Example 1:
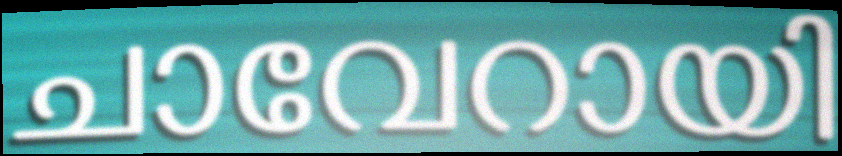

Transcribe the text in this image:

ചാവേറായി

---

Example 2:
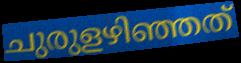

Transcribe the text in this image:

ചുരുളഴിഞ്ഞത്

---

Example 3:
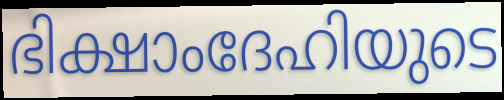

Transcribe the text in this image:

ഭിക്ഷാംദേഹിയുടെ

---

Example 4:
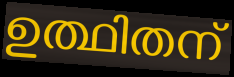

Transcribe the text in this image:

ഉത്ഥിതന്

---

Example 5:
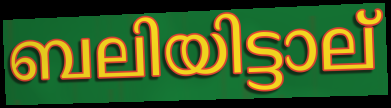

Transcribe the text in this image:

ബലിയിട്ടാല്